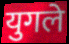
युगले